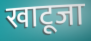
खाटूजा